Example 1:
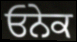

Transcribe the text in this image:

ਓਨੇਕ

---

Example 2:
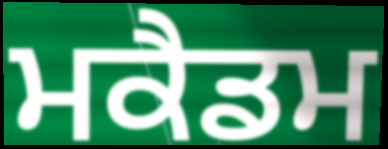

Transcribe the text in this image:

ਮਕੈਡਮ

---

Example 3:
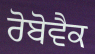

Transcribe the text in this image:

ਰੋਬੋਵੈਕ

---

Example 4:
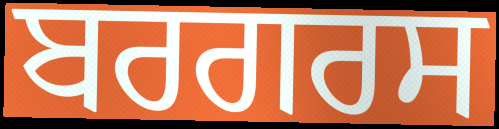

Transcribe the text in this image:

ਬਰਗਰਸ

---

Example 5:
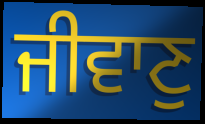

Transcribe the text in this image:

ਜੀਵਾਣੁ